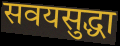
सवयसुद्धा